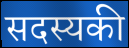
सदस्यकी